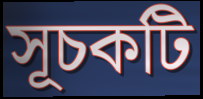
সূচকটি